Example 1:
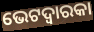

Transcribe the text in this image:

ଭେଟଦ୍ୱାରକା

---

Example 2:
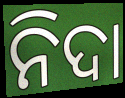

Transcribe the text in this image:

ନିଦା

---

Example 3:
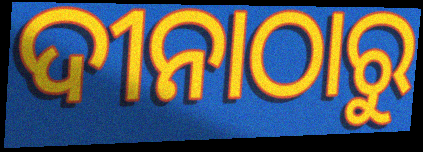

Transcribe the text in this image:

ଦୀନାଠାରୁ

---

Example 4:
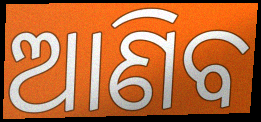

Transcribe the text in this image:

ଆଣିବ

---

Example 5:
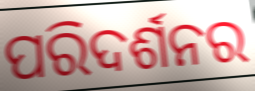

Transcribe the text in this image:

ପରିଦର୍ଶନର